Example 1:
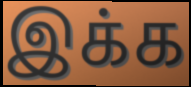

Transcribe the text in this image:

இக்க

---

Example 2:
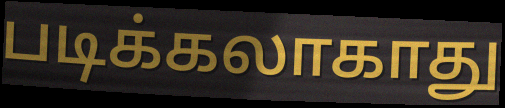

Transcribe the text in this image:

படிக்கலாகாது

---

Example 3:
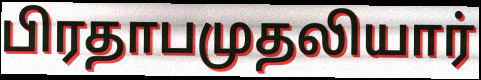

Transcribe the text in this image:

பிரதாபமுதலியார்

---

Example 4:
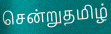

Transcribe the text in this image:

சென்றுதமிழ்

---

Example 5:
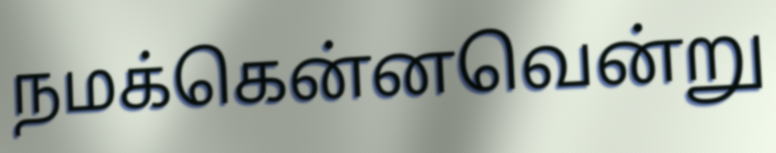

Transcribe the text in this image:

நமக்கென்னவென்று